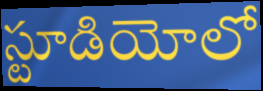
స్టూడియోలో